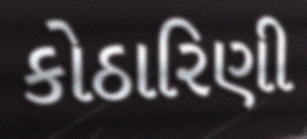
કોઠારિણી